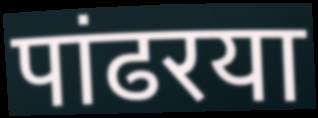
पांढरया